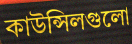
কাউন্সিলগুলো